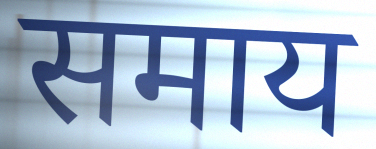
समाय